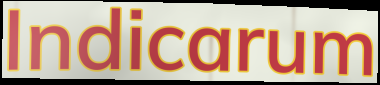
Indicarum